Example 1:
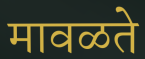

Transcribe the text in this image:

मावळते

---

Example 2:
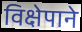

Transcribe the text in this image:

विक्षेपाने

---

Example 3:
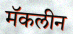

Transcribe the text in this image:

मॅकलीन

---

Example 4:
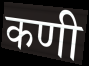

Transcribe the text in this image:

कणी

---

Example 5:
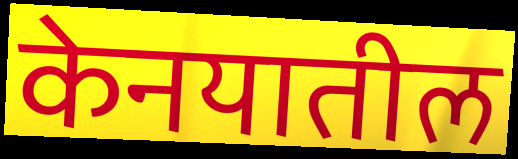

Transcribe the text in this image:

केनयातील